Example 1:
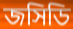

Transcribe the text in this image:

জসিডি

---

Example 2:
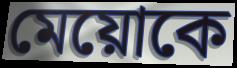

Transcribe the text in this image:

মেয়োকে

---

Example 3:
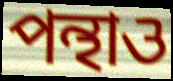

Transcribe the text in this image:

পন্থাও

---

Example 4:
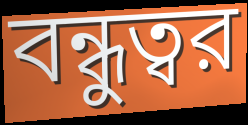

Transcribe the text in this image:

বন্ধুত্বর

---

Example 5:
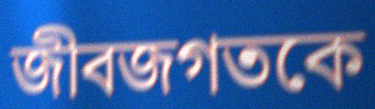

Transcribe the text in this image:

জীবজগতকে